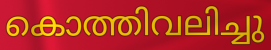
കൊത്തിവലിച്ചു